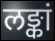
लङ्कां